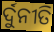
ର୍ଦୁନୀତି